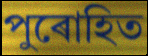
পুৰোহিত